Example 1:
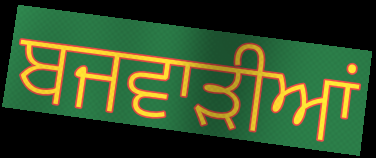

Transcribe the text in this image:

ਬਜਵਾੜੀਆਂ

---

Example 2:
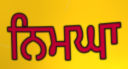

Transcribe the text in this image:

ਨਿਮਘਾ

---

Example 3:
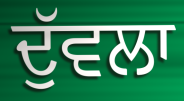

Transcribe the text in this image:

ਦੁੱਵਲਾ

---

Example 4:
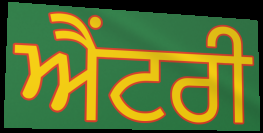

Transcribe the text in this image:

ਐਂਟਰੀ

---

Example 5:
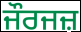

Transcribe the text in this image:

ਜੌਰਜਜ਼